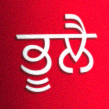
ਭੂਲੈ